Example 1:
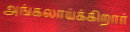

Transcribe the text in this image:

அங்கலாய்க்கிறார்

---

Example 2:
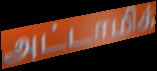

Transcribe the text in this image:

அட்டாமிக்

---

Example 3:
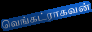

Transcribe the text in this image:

வெங்கட்ராகவன்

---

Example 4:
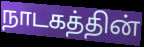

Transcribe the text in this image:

நாடகத்தின்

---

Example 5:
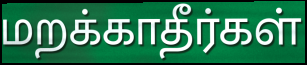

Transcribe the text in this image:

மறக்காதீர்கள்